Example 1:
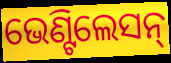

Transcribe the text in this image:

ଭେଣ୍ଟିଲେସନ୍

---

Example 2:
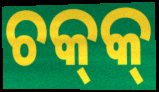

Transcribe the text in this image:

ଚକ୍‌କ୍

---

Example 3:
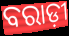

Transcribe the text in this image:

ବରାଡ଼ୀ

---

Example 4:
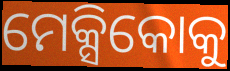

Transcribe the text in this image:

ମେକ୍ସିକୋକୁ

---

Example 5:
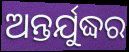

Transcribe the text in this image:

ଅନ୍ତର୍ଯୁଦ୍ଧର